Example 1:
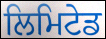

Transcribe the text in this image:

ਲਿਮਿਟੇਡ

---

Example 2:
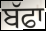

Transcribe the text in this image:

ਬੱਫਾ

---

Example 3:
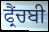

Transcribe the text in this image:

ਫ੍ਰੈਂਚਬੀ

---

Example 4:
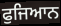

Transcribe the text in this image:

ਫੁਜਿਆਨ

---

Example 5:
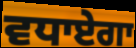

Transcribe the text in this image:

ਵਧਾਏਗਾ